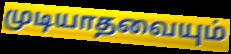
முடியாதவையும்